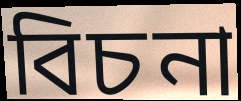
বিচনা